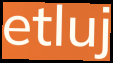
etluj